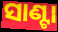
ସାଣ୍ଟା